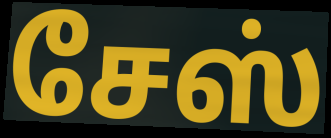
சேஸ்